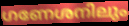
ഗണേശനിലും